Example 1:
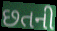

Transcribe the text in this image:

છતની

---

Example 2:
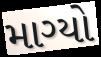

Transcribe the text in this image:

માગ્યો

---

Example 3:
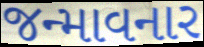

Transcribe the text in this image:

જન્માવનાર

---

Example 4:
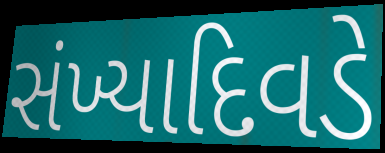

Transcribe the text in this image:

સંખ્યાદિવડે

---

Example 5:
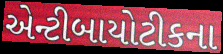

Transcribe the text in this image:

એન્ટીબાયોટીકના